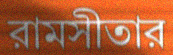
রামসীতার